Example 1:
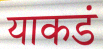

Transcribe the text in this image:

याकडं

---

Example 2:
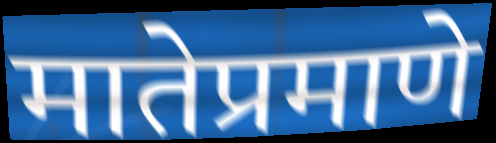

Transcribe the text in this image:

मातेप्रमाणे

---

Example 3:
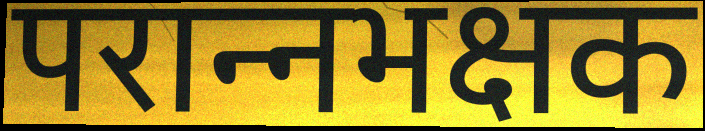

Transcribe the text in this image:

परान्नभक्षक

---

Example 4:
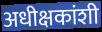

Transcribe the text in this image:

अधीक्षकांशी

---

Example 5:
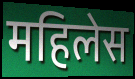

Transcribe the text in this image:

महिलेस